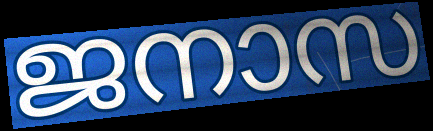
ജനാസ